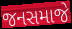
જનસમાજે